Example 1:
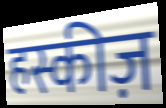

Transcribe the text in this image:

हस्कीज़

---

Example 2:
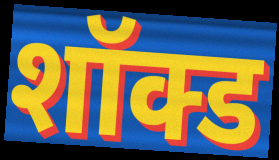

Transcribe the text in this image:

शॉक्ड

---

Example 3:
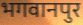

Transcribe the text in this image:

भगवानपुर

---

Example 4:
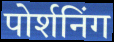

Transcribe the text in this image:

पोर्शनिंग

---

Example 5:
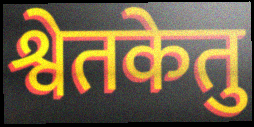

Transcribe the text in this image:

श्वेतकेतु